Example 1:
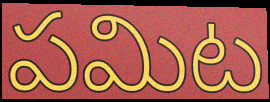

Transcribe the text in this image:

పమిట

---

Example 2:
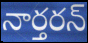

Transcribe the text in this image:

నార్తరన్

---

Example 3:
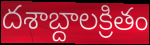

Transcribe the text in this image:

దశాబ్దాలక్రితం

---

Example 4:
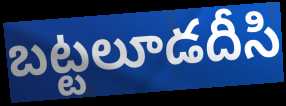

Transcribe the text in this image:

బట్టలూడదీసి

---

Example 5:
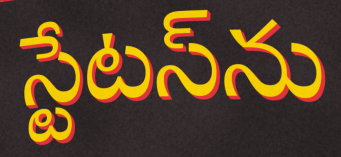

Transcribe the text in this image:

స్టేటస్‌ను